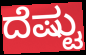
ದೆಷ್ಟು